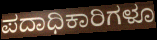
ಪದಾಧಿಕಾರಿಗಳೂ